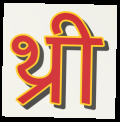
थ्री